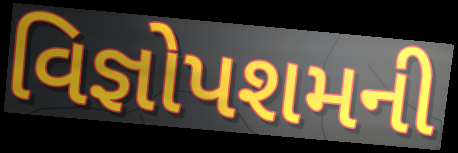
વિજ્ઞોપશમની